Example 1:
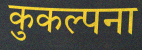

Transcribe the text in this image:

कुकल्पना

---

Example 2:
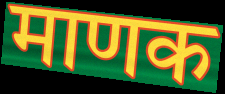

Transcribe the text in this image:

माणक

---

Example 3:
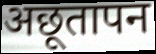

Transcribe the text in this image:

अछूतापन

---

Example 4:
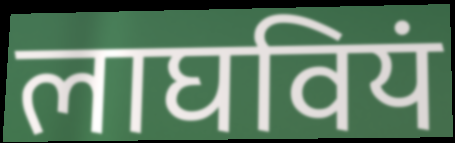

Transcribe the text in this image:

लाघवियं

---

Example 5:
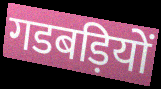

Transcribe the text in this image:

गडबड़ियों